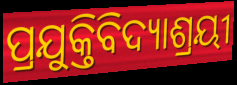
ପ୍ରଯୁକ୍ତିବିଦ୍ୟାଶ୍ରୟୀ